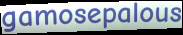
gamosepalous